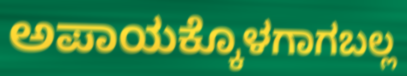
ಅಪಾಯಕ್ಕೊಳಗಾಗಬಲ್ಲ